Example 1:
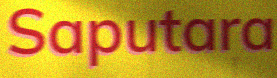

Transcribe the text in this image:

Saputara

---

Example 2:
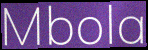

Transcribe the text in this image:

Mbola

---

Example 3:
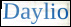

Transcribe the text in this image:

Daylio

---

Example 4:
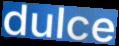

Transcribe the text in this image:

dulce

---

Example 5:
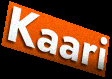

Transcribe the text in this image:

Kaari